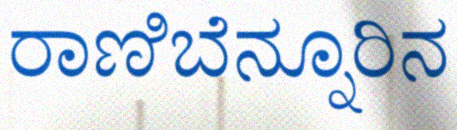
ರಾಣಿಬೆನ್ನೂರಿನ